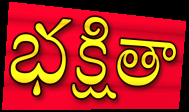
భక్షితా